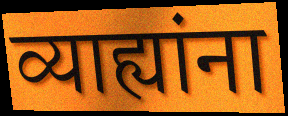
व्याह्यांना